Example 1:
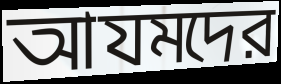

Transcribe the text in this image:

আযমদের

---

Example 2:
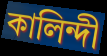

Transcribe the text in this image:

কালিন্দী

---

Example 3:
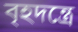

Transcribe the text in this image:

বৃহদন্ত্রে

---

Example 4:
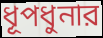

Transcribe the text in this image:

ধূপধুনার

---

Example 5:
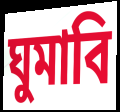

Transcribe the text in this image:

ঘুমাবি